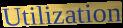
Utilization